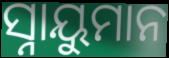
ସ୍ନାୟୁମାନ